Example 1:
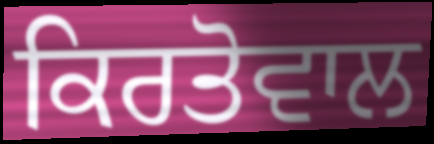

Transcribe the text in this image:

ਕਿਰਤੋਵਾਲ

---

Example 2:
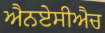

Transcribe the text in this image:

ਐਨਏਸੀਐਚ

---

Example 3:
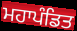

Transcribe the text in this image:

ਮਹਾਪੰਡਿਤ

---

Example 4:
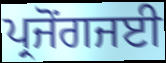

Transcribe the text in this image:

ਪ੍ਰਜੋਂਗਜਈ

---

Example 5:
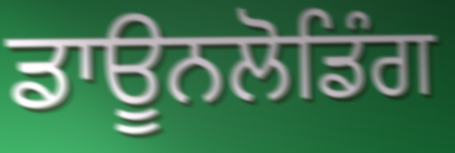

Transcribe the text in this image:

ਡਾਊਨਲੋਡਿੰਗ